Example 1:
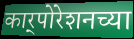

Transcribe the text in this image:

कार्पोरेशनच्या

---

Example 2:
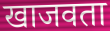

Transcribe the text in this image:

खाजवता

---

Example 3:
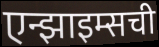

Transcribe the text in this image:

एन्झाइम्सची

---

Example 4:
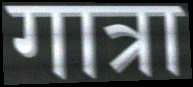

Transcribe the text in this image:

गात्रा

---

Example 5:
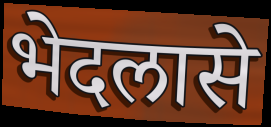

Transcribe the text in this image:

भेदलासे